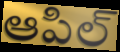
ఆపిల్